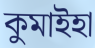
কুমাইহা